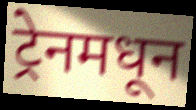
ट्रेनमधून